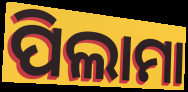
ପିଲାମା